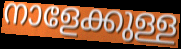
നാളേക്കുള്ള